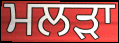
ਮਲੜਾ